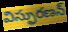
విస్ఫురణన్